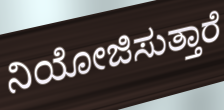
ನಿಯೋಜಿಸುತ್ತಾರೆ